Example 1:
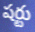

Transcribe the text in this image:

షర్టు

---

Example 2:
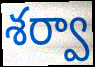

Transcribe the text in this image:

శర్వా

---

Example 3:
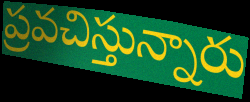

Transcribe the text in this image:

ప్రవచిస్తున్నారు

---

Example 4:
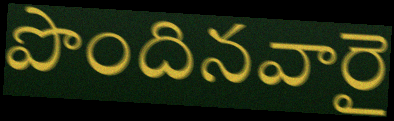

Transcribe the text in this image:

పొందినవారై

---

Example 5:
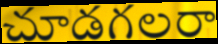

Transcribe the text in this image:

చూడగలరా